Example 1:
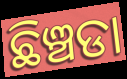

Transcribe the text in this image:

ଛିଞ୍ଚଡା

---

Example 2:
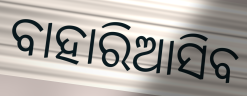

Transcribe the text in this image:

ବାହାରିଆସିବ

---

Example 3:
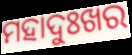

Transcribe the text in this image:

ମହାଦୁଃଖର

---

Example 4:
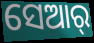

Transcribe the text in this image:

ସେଆର୍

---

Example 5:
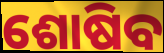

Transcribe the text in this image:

ଶୋଷିବ